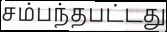
சம்பந்தபட்டது